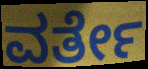
ವರ್ತೇ